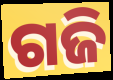
ଗଜି